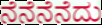
ನೆನೆನೆನೆದು